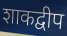
शाकद्वीप